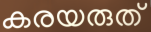
കരയരുത്